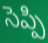
సెప్పి